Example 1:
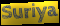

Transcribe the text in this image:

Suriya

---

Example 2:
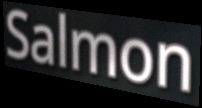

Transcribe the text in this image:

Salmon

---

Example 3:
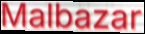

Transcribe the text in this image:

Malbazar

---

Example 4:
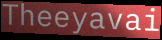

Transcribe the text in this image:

Theeyavai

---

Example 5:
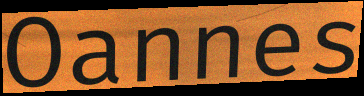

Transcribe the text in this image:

Oannes